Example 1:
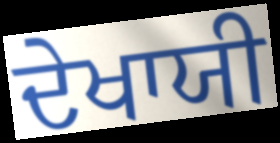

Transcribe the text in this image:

ਦੇਖਾਯੀ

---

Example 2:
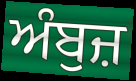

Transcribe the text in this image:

ਅੰਬੁਜ਼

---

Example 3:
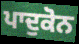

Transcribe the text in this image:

ਪਾਦੁਕੋਨ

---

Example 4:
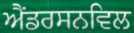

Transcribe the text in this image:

ਐਂਡਰਸਨਵਿਲ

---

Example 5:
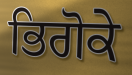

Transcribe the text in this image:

ਭਿਗੋਕੇ